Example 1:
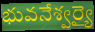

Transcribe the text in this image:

భువనేశ్వర్యై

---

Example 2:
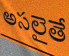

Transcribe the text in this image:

అసలైతే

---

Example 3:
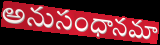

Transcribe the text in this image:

అనుసంధానమా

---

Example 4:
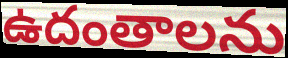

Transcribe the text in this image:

ఉదంతాలను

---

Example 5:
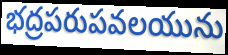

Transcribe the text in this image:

భద్రపరుపవలయును